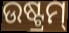
ଉଷ୍ଟ୍ରମ୍